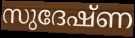
സുദേഷ്ണ